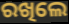
ରଖିଲେ